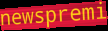
newspremi